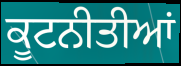
ਕੂਟਨੀਤੀਆਂ